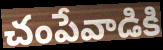
చంపేవాడికి